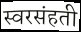
स्वरसंहती